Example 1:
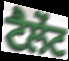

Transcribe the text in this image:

ਟੈਲੇੰਟ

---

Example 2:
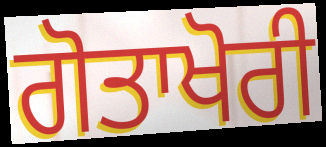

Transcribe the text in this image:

ਗੋਤਾਖੋਰੀ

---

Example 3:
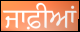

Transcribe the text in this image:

ਜਾਫ਼ੀਆਂ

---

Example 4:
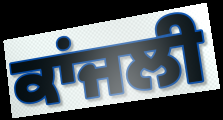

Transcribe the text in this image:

ਕਾਂਜਲੀ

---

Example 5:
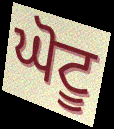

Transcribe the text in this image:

ਘੋਟੂ